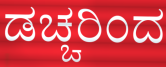
ಡಚ್ಚರಿಂದ